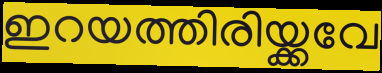
ഇറയത്തിരിയ്ക്കവേ